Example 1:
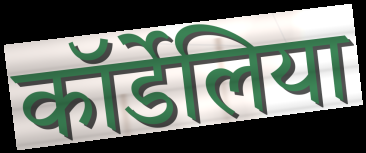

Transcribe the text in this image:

कॉर्डेलिया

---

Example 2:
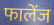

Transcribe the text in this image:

फालेंज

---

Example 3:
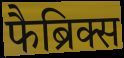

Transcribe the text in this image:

फैब्रिक्स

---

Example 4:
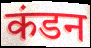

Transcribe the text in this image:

कंडन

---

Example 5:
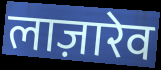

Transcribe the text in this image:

लाज़ारेव